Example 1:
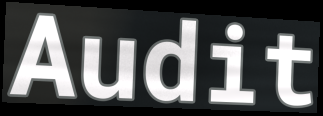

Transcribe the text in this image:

Audit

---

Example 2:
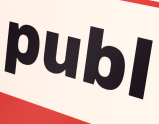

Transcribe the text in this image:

publ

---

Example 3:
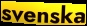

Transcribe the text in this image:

svenska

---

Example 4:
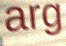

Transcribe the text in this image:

arg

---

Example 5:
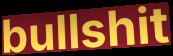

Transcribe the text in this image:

bullshit